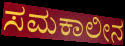
ಸಮಕಾಲೀನ